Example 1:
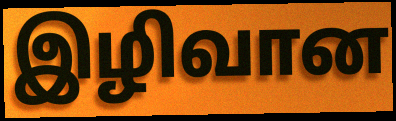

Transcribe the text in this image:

இழிவான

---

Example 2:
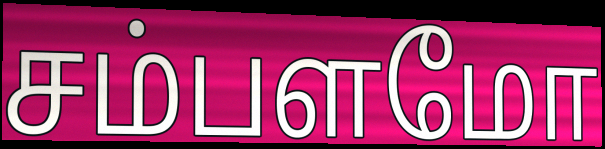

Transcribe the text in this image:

சம்பளமோ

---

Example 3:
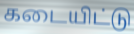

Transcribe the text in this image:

கடையிட்டு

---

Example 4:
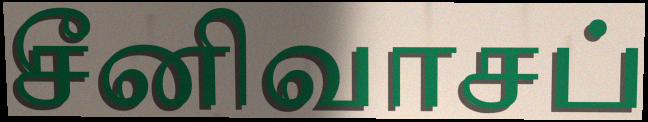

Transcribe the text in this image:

சீனிவாசப்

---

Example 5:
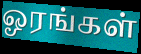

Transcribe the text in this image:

ஓரங்கள்